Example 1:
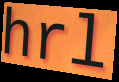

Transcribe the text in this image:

hrl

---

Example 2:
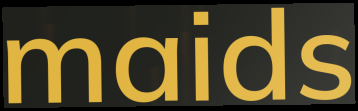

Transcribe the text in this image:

maids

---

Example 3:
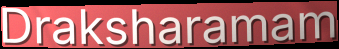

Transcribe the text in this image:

Draksharamam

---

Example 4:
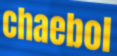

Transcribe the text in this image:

chaebol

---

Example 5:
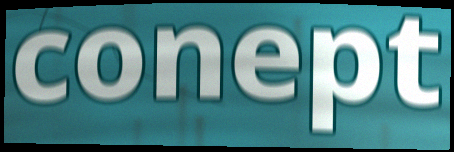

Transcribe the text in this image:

conept